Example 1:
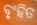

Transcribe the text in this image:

ବୃଂହିତ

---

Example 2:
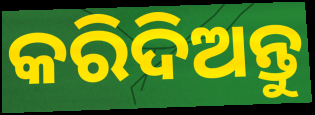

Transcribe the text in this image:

କରିଦିଅନ୍ତୁ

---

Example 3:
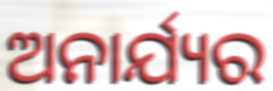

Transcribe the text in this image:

ଅନାର୍ଯ୍ୟର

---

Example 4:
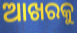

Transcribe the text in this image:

ଆଖରକୁ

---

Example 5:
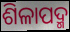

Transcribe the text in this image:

ଶିଳାପଦ୍ମ